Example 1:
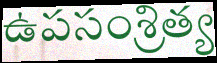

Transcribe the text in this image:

ఉపసంశ్రిత్య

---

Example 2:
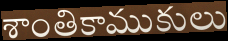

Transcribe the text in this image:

శాంతికాముకులు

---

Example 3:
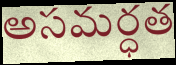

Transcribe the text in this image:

అసమర్ధత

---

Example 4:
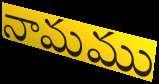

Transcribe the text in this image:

నామము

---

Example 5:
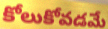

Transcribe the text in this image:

కోలుకోవడమే